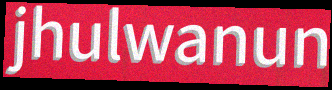
jhulwanun